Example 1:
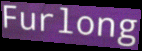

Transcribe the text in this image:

Furlong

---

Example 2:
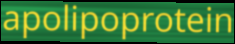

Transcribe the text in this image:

apolipoprotein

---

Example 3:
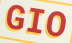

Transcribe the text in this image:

GIO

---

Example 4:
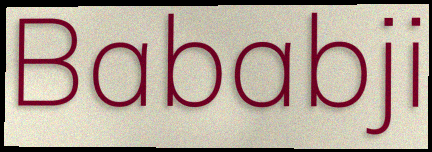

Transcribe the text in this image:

Bababji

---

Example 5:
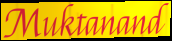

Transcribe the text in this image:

Muktanand